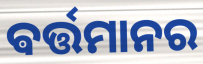
ଵର୍ତ୍ତମାନର